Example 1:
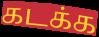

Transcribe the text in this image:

கடக்க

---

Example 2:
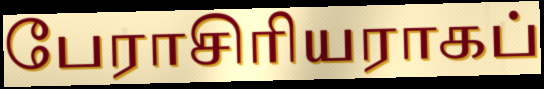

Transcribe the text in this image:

பேராசிரியராகப்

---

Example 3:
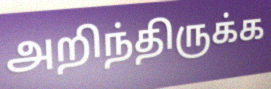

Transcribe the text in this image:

அறிந்திருக்க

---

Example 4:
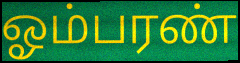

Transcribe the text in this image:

ஓம்பரண்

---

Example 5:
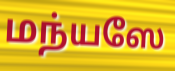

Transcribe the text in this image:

மந்யஸே